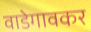
वाडेगावकर